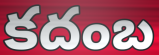
కదంబ